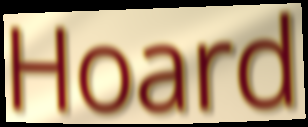
Hoard